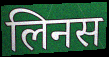
लिनस